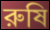
রুষি